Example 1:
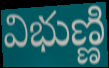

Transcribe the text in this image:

విభుణ్ణి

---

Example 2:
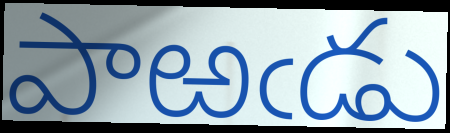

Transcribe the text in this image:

పాఱఁడు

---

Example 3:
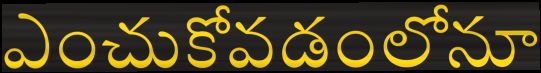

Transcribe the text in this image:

ఎంచుకోవడంలోనూ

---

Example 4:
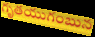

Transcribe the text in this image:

గృతయుగంబున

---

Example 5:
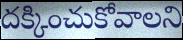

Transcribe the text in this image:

దక్కించుకోవాలని